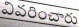
వివరించారు